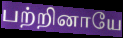
பற்றினாயே